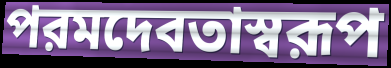
পরমদেবতাস্বরূপ